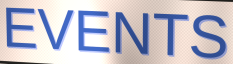
EVENTS